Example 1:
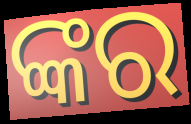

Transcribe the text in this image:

ଙ୍କର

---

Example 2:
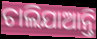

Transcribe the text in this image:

ଚାଲିଯାଆନ୍ତି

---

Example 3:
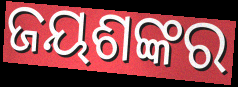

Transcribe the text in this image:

ଜୟଶଙ୍କର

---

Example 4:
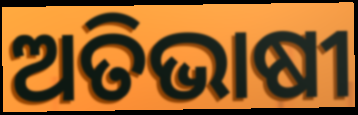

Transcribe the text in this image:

ଅତିଭାଷୀ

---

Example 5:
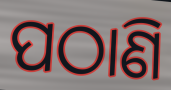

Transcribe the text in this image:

ପଠାଣି